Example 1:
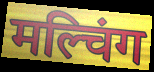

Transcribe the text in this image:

मल्चिंग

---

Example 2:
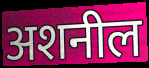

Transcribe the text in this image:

अशनील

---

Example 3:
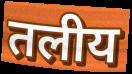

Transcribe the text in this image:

तलीय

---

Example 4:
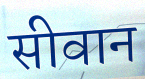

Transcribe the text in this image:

सीवान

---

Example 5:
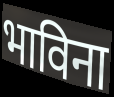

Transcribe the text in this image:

भाविना